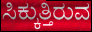
ಸಿಕ್ಕುತ್ತಿರುವ